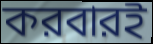
করবারই